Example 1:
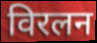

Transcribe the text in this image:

विरलन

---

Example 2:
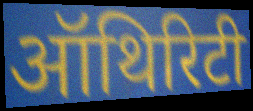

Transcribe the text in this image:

ऑथिरिटी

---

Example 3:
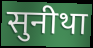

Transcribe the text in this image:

सुनीथा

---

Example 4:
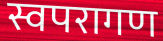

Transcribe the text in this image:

स्वपरागण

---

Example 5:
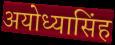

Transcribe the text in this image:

अयोध्यासिंह